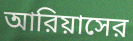
আরিয়াসের